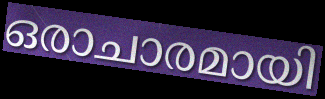
ഒരാചാരമായി